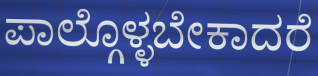
ಪಾಲ್ಗೊಳ್ಳಬೇಕಾದರೆ